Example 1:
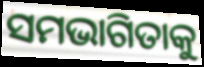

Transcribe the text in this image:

ସମଭାଗିତାକୁ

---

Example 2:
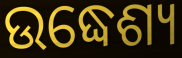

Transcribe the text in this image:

ଉଦ୍ଧେଶ୍ୟ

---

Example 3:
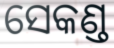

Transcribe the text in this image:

ସେକଣ୍ଡ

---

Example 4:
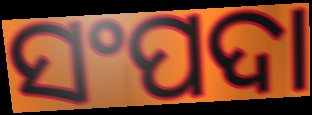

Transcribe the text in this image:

ସଂପଦା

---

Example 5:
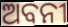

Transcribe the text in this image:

ଅବନୀ